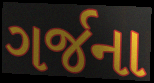
ગર્જના